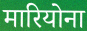
मारियोना